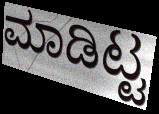
ಮಾಡಿಟ್ಟ